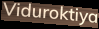
Viduroktiya